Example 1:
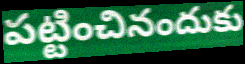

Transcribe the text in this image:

పట్టించినందుకు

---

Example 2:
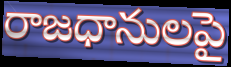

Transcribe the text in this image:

రాజధానులపై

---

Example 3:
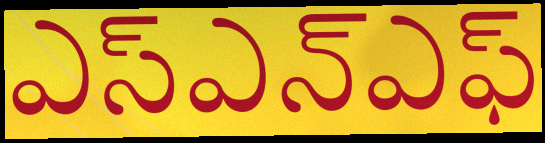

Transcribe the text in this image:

ఎస్ఎన్ఎఫ్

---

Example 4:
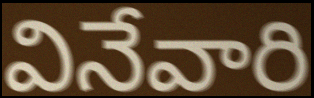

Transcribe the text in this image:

వినేవారి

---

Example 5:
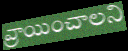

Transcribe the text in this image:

వ్రాయించాలని